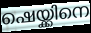
ഷെയ്ക്കിനെ